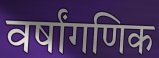
वर्षांगणिक